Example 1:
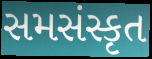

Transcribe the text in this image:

સમસંસ્કૃત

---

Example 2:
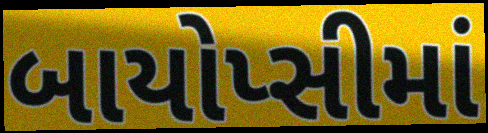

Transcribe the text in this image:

બાયોપ્સીમાં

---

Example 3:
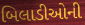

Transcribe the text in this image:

બિલાડીઓની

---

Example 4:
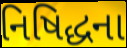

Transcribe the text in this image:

નિષિદ્ધના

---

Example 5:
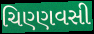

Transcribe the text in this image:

ચિણ્ણવસી